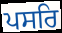
ਪਸਰਿ